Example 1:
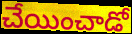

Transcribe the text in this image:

చేయించాడో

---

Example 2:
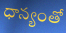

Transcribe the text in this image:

ధాన్యంతో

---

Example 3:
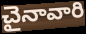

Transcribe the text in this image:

చైనావారి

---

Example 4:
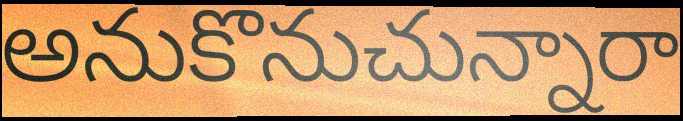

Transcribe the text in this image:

అనుకొనుచున్నారా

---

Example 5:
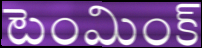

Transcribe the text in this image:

టెంమింక్